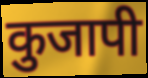
कुजापी